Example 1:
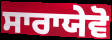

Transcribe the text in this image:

ਸਾਰਾਯੇਵੋ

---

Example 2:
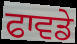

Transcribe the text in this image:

ਫਾਵਡੇ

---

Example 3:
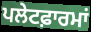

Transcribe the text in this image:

ਪਲੇਟਫ਼ਾਰਮਾਂ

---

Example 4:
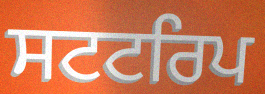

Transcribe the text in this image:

ਸਟਟਰਿਪ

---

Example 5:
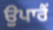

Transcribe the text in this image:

ਉਪਾਰੈਂ